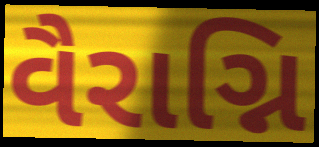
વૈરાગ્નિ